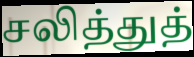
சலித்துத்